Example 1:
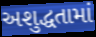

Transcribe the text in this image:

અશુદ્ધતામાં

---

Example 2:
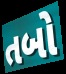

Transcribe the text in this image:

તબો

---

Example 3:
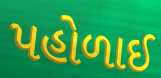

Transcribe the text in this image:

પહોળાઈ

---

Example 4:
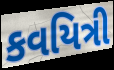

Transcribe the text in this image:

કવયિત્રી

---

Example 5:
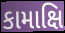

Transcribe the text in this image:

કામાક્ષિ